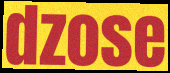
dzose